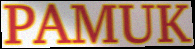
PAMUK